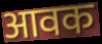
आवक